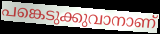
പങ്കെടുക്കുവാനാണ്